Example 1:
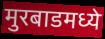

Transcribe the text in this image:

मुरबाडमध्ये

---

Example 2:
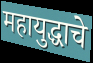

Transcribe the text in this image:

महायुद्धाचे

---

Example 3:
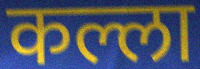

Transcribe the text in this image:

कल्ला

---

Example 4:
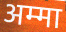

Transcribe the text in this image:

अम्मा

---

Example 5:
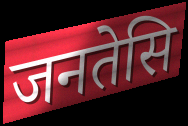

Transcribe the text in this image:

जनतेसि